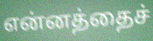
என்னத்தைச்